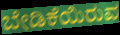
ಬೇಡಿಕೆಯಿರುವ